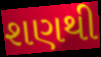
શણથી